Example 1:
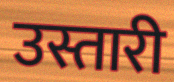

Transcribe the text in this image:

उस्तारी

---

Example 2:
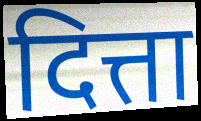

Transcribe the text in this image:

दित्ता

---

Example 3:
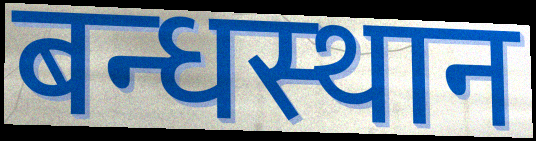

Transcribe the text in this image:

बन्धस्थान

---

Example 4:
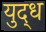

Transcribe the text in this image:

युद्‍ध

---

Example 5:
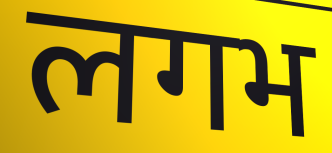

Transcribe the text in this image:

लगभ